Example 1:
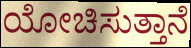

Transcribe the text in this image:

ಯೋಚಿಸುತ್ತಾನೆ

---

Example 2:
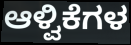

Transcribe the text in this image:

ಆಳ್ವಿಕೆಗಳ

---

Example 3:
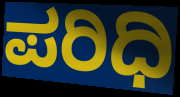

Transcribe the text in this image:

ಪರಿಧಿ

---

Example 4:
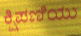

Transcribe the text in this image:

ಕ್ಷಿಪಣಿಯು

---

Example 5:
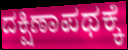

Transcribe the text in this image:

ದಕ್ಷಿಣಾಪಥಕ್ಕೆ